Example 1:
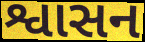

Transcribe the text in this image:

શ્વાસન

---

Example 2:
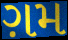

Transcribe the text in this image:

ગ઼મ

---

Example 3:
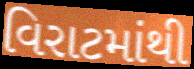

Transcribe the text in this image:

વિરાટમાંથી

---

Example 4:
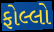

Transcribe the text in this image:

ફોલ્લો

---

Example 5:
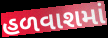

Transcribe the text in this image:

હળવાશમાં